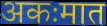
अकःमात